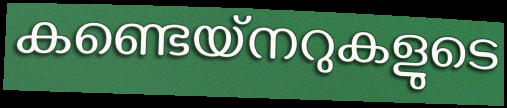
കണ്ടെയ്നറുകളുടെ